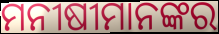
ମନୀଷୀମାନଙ୍କର